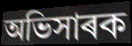
অভিসাৰক